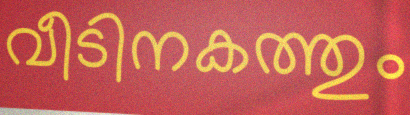
വീടിനകത്തും